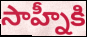
సాహ్నీకి